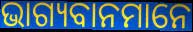
ଭାଗ୍ୟବାନମାନେ